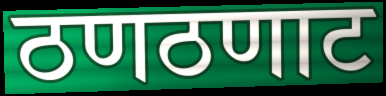
ठणठणाट